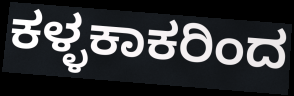
ಕಳ್ಳಕಾಕರಿಂದ